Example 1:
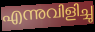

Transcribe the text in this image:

എന്നുവിളിച്ചു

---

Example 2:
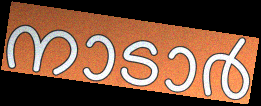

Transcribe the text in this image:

നാടാർ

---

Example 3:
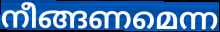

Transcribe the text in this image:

നീങ്ങണമെന്ന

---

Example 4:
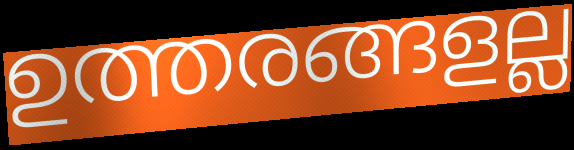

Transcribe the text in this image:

ഉത്തരങ്ങളല്ല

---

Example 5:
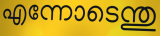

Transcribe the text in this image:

എന്നോടെന്തു